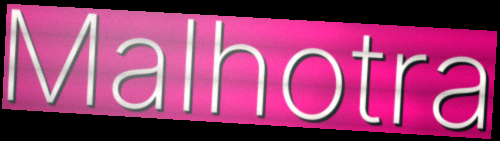
Malhotra